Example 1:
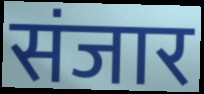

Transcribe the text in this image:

संजार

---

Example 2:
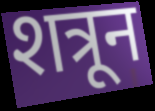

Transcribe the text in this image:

शत्रून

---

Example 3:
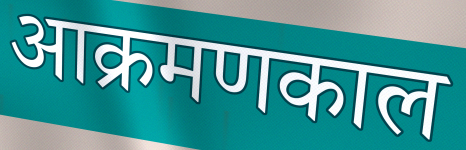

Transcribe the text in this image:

आक्रमणकाल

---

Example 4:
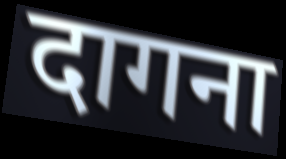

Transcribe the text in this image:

दागना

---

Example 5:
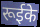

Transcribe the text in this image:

रूईके